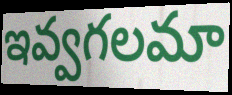
ఇవ్వగలమా